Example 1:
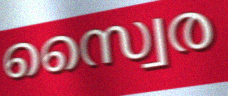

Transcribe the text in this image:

സ്വൈര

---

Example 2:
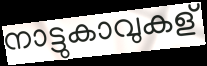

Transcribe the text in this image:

നാട്ടുകാവുകള്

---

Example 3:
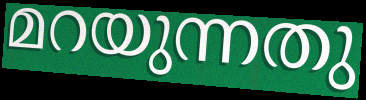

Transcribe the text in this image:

മറയുന്നതു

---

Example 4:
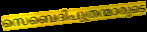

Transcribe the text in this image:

സെബെദിപുത്രന്മാരുടെ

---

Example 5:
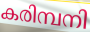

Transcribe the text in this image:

കരിമ്പനി